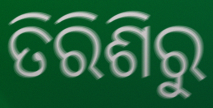
ତିରିଶିରୁ